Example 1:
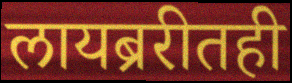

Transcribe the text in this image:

लायब्ररीतही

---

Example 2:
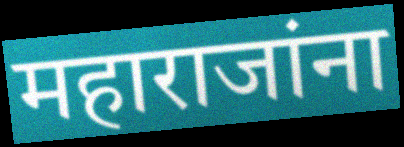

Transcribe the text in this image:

महाराजांना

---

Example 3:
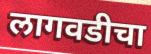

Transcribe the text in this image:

लागवडीचा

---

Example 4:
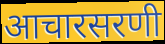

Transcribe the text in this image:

आचारसरणी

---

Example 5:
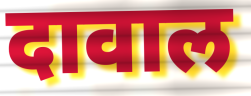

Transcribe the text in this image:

दावाल